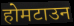
होमटाउन